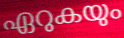
ഏറുകയും